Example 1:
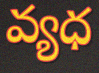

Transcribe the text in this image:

వ్యధ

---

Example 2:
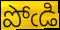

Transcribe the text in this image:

పోఁడి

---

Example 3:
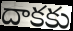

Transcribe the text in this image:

దాకకు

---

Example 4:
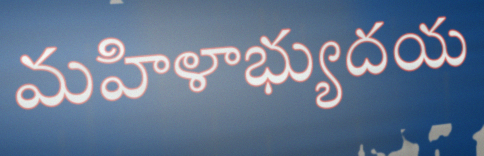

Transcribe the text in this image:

మహిళాభ్యుదయ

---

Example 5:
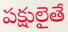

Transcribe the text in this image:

పక్షులైతే